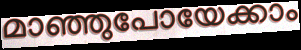
മാഞ്ഞുപോയേക്കാം